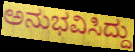
ಅನುಭವಿಸಿದ್ದು